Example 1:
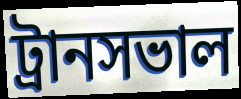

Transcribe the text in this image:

ট্রানসভাল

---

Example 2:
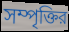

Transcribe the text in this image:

সম্পৃক্তির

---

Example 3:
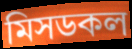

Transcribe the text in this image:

মিসডকল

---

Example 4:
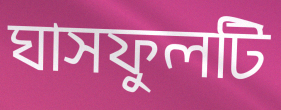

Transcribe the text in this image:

ঘাসফুলটি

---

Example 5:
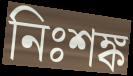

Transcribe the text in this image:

নিঃশঙ্ক